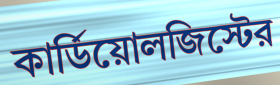
কার্ডিয়োলজিস্টের